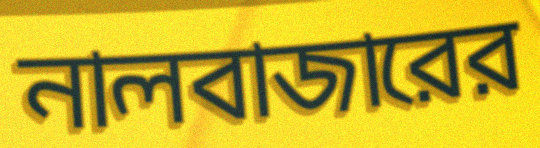
নালবাজারের